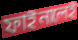
ফাইনালেই